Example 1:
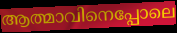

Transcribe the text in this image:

ആത്മാവിനെപ്പോലെ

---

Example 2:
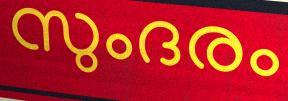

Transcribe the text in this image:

സുംദരം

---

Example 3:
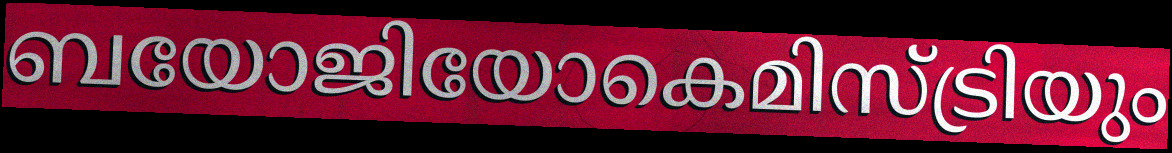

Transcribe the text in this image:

ബയോജിയോകെമിസ്ട്രിയും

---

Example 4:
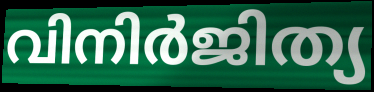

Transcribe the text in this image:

വിനിർജിത്യ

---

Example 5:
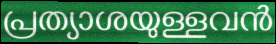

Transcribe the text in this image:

പ്രത്യാശയുള്ളവൻ